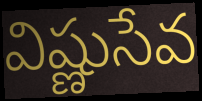
విష్ణుసేవ